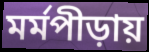
মর্মপীড়ায়